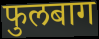
फुलबाग